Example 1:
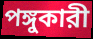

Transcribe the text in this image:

পঙ্গুকারী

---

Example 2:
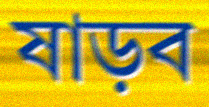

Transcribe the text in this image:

ষাড়ব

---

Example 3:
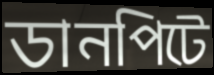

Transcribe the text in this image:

ডানপিটে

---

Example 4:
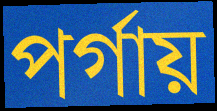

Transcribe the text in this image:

পর্গায়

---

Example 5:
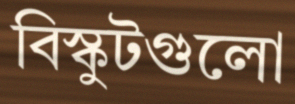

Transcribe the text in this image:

বিস্কুটগুলো